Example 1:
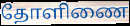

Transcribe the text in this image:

தோளிணை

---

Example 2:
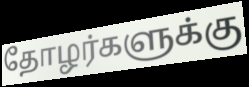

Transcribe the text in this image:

தோழர்களுக்கு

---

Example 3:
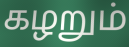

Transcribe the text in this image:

கழறும்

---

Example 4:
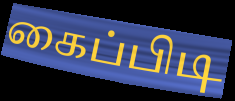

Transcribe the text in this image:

கைப்பிடி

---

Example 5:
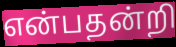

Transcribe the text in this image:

என்பதன்றி